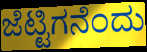
ಜೆಟ್ಟಿಗನೆಂದು